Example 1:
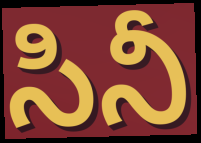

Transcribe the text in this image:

సినీ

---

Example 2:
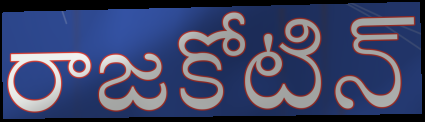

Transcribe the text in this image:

రాజకోటిన్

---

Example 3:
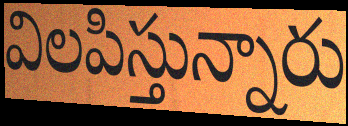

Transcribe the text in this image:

విలపిస్తున్నారు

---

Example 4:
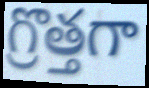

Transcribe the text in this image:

గ్రొత్తగా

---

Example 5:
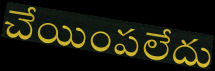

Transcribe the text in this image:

చేయింపలేదు